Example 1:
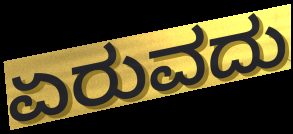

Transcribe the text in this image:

ಏರುವದು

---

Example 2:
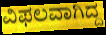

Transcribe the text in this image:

ವಿಫಲವಾಗಿದ್ದ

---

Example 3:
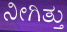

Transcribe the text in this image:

ನೀಗಿತ್ತು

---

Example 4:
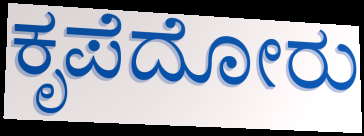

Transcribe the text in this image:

ಕೃಪೆದೋರು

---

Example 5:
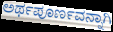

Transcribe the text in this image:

ಅರ್ಥಪೂರ್ಣವನ್ನಾಗಿ